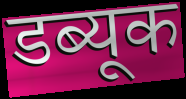
डब्यूक